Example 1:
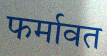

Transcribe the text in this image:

फर्मावत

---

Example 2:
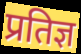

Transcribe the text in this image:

प्रतिज्ञ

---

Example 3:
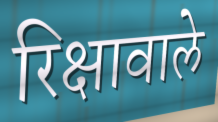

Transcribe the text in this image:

रिक्षावाले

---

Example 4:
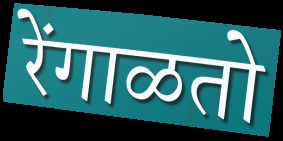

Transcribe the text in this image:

रेंगाळतो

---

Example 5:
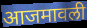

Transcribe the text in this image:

आजमावली